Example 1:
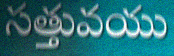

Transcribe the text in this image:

సత్తువయు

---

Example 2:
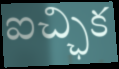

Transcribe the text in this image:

ఐచ్ఛిక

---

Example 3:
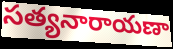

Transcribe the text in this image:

సత్యనారాయణా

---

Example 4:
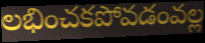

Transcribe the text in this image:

లభించకపోవడంవల్ల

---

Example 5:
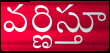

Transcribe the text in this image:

వర్ణిస్తూ